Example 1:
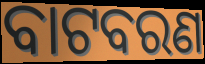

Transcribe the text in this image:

ବାଟବରଣ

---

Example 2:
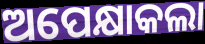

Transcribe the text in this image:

ଅପେକ୍ଷାକଲା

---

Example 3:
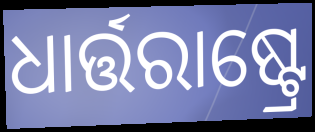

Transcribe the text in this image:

ଧାର୍ତ୍ତରାଷ୍ଟ୍ରେ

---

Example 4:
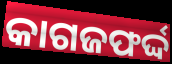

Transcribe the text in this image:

କାଗଜଫର୍ଦ୍ଦ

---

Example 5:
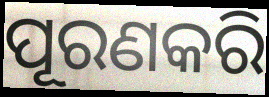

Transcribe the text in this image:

ପୂରଣକରି